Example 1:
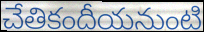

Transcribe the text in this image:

చేతికందీయనుంటి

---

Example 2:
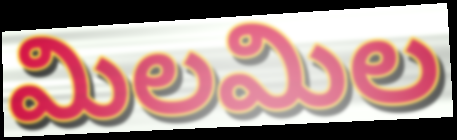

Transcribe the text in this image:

మిలమిల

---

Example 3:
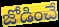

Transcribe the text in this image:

జోడించే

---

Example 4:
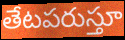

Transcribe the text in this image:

తేటపరుస్తూ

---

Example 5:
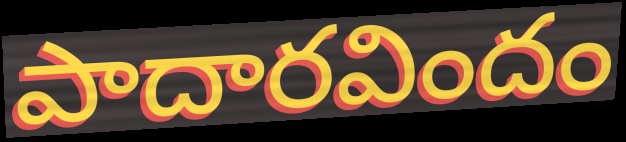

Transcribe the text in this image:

పాదారవిందం